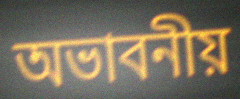
অভাবনীয়